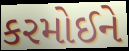
કરમોઈને